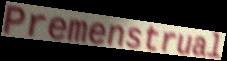
Premenstrual